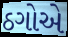
ઠગોએ